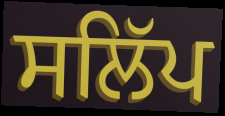
ਸਲਿੱਪ